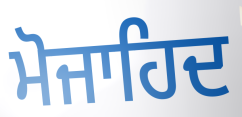
ਮੋਜਾਹਿਦ